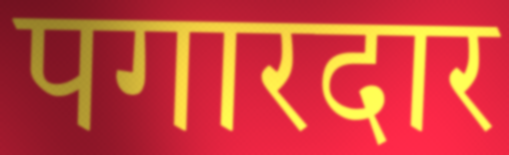
पगारदार